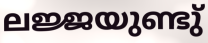
ലജ്ജയുണ്ടു്